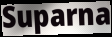
Suparna